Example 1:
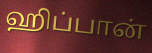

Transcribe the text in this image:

ஹிப்பான்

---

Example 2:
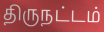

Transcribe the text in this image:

திருநட்டம்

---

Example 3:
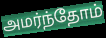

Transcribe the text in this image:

அமர்ந்தோம்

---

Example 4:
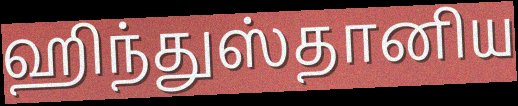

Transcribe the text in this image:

ஹிந்துஸ்தானிய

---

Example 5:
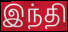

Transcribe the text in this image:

இந்தி